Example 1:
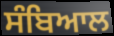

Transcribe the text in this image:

ਸੰਬਿਆਲ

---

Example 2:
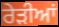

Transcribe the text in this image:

ਰੇੜੀਆਂ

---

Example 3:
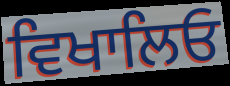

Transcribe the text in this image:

ਵਿਖਾਲਿਓ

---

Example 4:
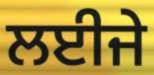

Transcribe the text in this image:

ਲਈਜੇ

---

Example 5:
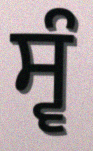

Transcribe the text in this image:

ਸ੍ਵੰ